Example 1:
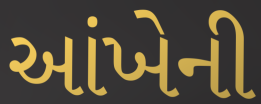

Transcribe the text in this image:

આંખેની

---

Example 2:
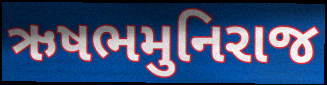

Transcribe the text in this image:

ઋષભમુનિરાજ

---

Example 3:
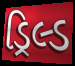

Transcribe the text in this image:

ડ્રિલ્ડ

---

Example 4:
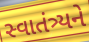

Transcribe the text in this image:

સ્વાતંત્ર્યને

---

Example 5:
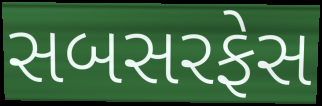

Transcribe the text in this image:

સબસરફેસ